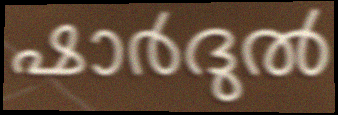
ഷാർദുൽ